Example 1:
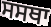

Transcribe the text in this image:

ਸਸਥਾ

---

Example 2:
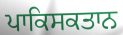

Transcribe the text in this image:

ਪਾਕਿਸਕਤਾਨ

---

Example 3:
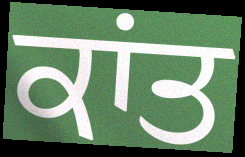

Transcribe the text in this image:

ਕਾਂਤ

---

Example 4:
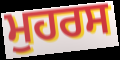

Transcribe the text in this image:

ਮੁਹਰਸ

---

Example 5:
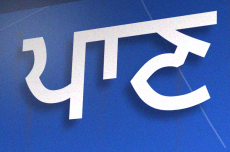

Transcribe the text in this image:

ਪਾਣ